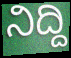
ನಿದ್ದಿ